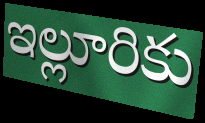
ఇల్లూరికు